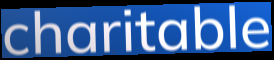
charitable